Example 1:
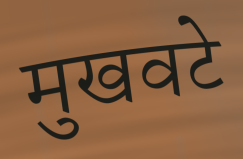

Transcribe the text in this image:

मुखवटे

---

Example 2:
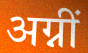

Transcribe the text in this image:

अग्नीं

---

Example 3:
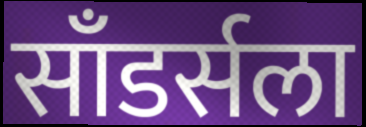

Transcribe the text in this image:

साँडर्सला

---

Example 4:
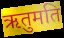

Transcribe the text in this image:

ऋतुमति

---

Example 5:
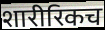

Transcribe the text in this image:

शारीरिकच